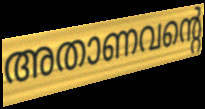
അതാണവന്റെ